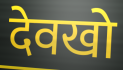
देवखो